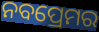
ନବପ୍ରେମର